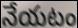
నేయటం